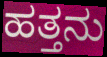
ಹತ್ತನು